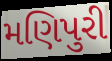
મણિપુરી